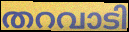
തറവാടി